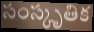
సంస్కృతిక